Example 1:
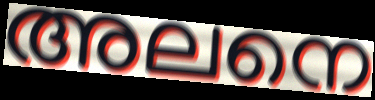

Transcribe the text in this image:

അലനെ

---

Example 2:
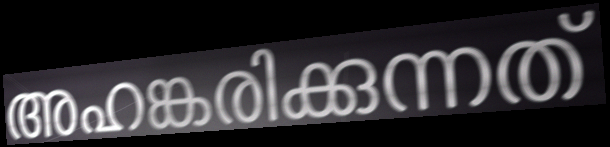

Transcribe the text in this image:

അഹങ്കരിക്കുന്നത്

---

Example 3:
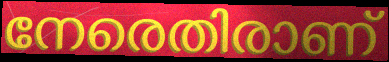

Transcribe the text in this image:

നേരെതിരാണ്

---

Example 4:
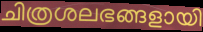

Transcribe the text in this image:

ചിത്രശലഭങ്ങളായി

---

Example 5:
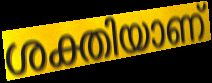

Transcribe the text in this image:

ശക്തിയാണ്